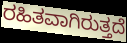
ರಹಿತವಾಗಿರುತ್ತದೆ